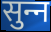
सुन्‍न